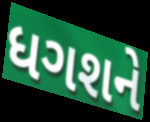
ધગશને